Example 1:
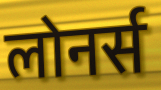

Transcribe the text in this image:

लोनर्स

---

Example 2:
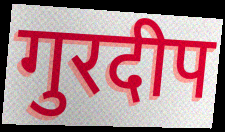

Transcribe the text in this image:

गुरदीप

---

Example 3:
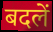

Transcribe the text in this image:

बदलें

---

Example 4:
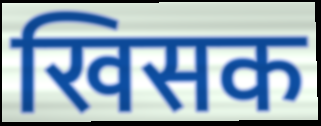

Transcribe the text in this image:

खिसक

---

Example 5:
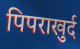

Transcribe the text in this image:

पिपराखुर्द